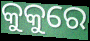
କୁକୁରେ